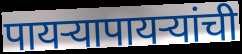
पायऱ्यापायऱ्यांची